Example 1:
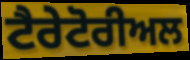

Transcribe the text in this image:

ਟੈਰੇਟੋਰੀਅਲ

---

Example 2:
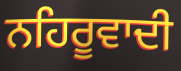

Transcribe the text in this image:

ਨਹਿਰੂਵਾਦੀ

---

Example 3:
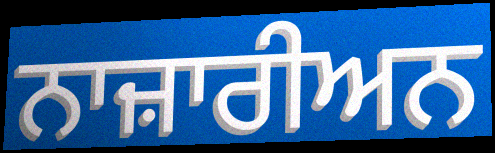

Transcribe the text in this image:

ਨਾਜ਼ਾਰੀਅਨ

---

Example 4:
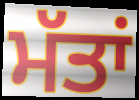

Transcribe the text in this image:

ਮੱਤਾਂ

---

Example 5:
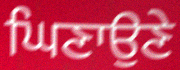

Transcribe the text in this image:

ਘਿਣਾਉਣੇ